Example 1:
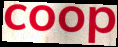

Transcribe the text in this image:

coop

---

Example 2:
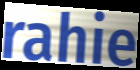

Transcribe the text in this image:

rahie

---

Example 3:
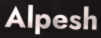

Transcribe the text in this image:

Alpesh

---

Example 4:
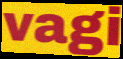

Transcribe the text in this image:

vagi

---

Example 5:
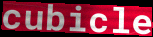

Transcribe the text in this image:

cubicle